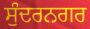
ਸੁੰਦਰਨਗਰ